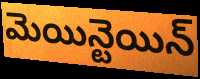
మెయిన్టెయిన్